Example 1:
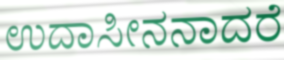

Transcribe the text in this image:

ಉದಾಸೀನನಾದರೆ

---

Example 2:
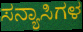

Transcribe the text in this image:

ಸನ್ಯಾಸಿಗಳ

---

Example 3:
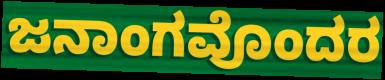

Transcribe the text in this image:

ಜನಾಂಗವೊಂದರ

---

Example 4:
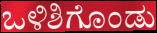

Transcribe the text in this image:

ಒಳಿಶಿಗೊಂಡು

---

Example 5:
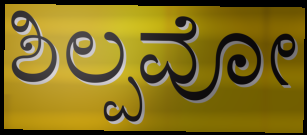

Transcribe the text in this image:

ಶಿಲ್ಪವೋ